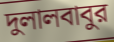
দুলালবাবুর